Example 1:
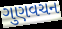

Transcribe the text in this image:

ગુણવચન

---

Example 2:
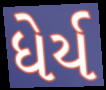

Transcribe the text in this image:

ધેર્ય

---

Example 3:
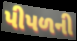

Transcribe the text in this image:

પીપળની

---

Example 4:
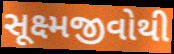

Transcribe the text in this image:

સૂક્ષ્મજીવોથી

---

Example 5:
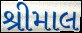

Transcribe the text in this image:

શ્રીમાલ